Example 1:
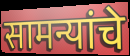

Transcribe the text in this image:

सामन्यांचे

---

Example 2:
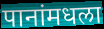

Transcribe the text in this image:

पानांमधला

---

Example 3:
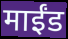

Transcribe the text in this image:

माईंड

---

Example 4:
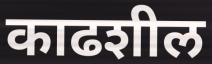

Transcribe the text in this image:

काढशील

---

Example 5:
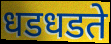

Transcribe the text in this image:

धडधडते